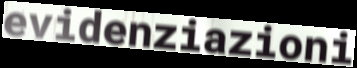
evidenziazioni